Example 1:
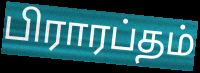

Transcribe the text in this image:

பிராரப்தம்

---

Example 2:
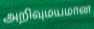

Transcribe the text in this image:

அறிவுமயமான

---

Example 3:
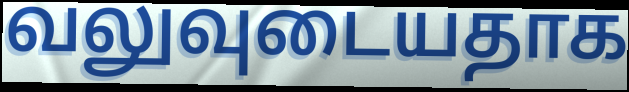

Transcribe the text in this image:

வலுவுடையதாக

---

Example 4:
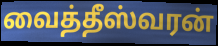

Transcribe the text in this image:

வைத்தீஸ்வரன்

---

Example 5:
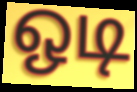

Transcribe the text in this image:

ஒடி